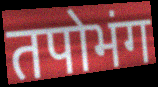
तपोभंग